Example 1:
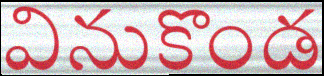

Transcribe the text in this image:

వినుకొండ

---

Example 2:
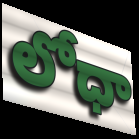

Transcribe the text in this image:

లోధా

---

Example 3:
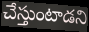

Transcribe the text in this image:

చేస్తుంటాడని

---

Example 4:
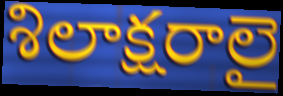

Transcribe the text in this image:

శిలాక్షరాలై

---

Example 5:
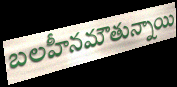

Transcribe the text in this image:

బలహీనమౌతున్నాయి